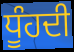
ਧੂੰਹਦੀ